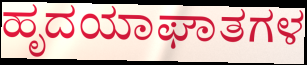
ಹೃದಯಾಘಾತಗಳ